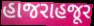
હાજરાહજૂર